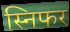
स्निफर